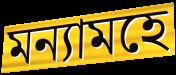
মন্যামহে